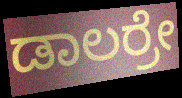
ಡಾಲರ್ರೇ